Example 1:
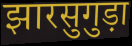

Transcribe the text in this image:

झारसुगुड़ा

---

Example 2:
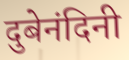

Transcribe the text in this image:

दुबेनंदिनी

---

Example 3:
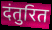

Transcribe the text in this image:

दंतुरित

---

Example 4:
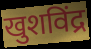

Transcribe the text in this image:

खुशविंद्र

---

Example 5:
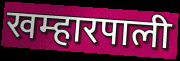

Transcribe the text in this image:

खम्हारपाली